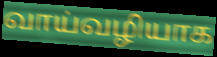
வாய்வழியாக